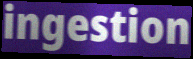
ingestion